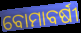
ବୋମାବର୍ଷୀ